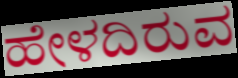
ಹೇಳದಿರುವ